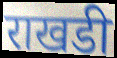
राखडी